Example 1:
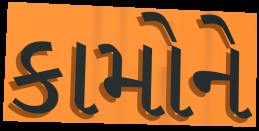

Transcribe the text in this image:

કામોને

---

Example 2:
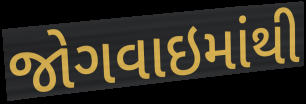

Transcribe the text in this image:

જોગવાઇમાંથી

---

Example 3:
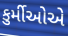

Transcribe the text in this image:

કુર્મીઓએ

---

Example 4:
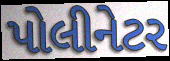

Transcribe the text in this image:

પોલીનેટર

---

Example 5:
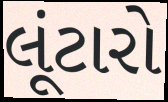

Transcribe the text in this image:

લૂંટારો